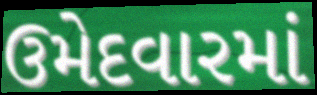
ઉમેદવારમાં